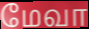
மேவா